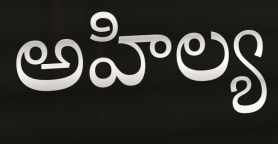
అహిల్య